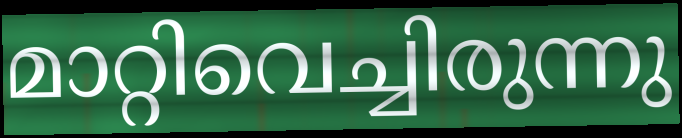
മാറ്റിവെച്ചിരുന്നു